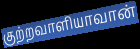
குற்றவாளியாவான்